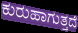
ಕುರುಹಾಗುತ್ತದೆ